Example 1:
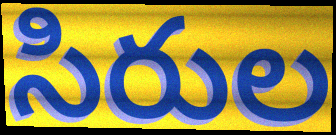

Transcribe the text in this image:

సిరుల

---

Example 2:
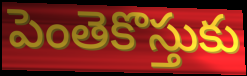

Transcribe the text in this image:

పెంతెకొస్తుకు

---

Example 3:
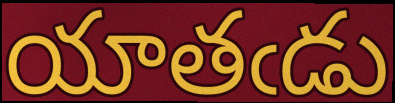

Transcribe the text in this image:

యాతఁడు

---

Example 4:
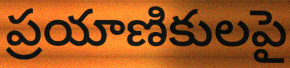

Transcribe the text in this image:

ప్రయాణికులపై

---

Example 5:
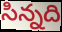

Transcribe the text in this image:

సిన్నది